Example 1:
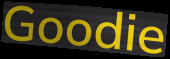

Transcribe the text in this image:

Goodie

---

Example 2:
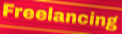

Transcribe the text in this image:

Freelancing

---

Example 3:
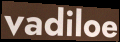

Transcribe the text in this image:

vadiloe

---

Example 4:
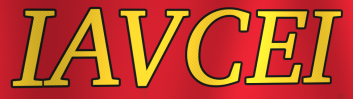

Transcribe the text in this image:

IAVCEI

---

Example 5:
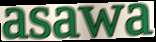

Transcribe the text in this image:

asawa